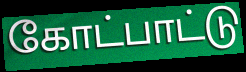
கோட்பாட்டு